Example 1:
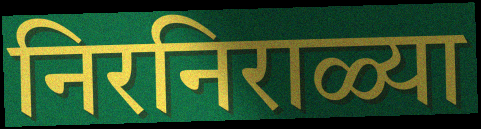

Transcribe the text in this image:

निरनिराळ्या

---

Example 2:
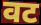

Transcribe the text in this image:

वट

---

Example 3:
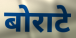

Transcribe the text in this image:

बोराटे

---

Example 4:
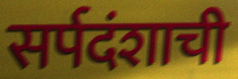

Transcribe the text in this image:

सर्पदंशाची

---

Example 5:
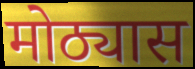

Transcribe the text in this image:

मोठ्यास